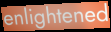
enlightened